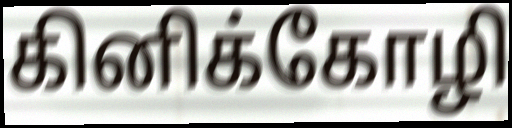
கினிக்கோழி